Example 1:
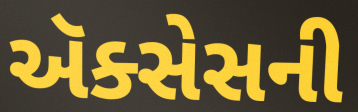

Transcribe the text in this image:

ઍક્સેસની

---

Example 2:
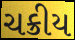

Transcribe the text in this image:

ચક્રીય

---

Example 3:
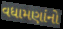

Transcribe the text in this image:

વધામણાંનો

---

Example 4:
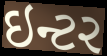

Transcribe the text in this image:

ઇન્ટર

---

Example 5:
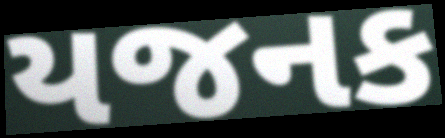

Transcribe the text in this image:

યજનક